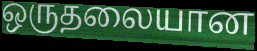
ஒருதலையான